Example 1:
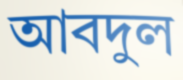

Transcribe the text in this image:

আবদুল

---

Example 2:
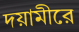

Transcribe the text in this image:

দয়ামীরে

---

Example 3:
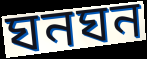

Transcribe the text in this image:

ঘনঘন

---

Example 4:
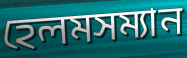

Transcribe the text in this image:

হেলমসম্যান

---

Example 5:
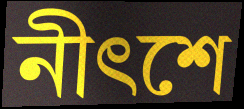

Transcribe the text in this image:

নীৎশে